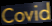
Covid